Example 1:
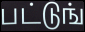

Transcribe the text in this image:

பட்டுங்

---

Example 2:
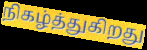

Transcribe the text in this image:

நிகழ்த்துகிறது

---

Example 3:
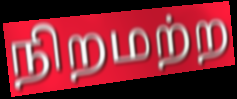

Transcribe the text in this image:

நிறமற்ற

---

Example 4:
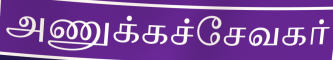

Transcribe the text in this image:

அணுக்கச்சேவகர்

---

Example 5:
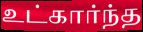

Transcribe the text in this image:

உட்கார்ந்த